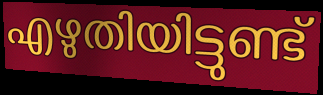
എഴുതിയിട്ടുണ്ട്